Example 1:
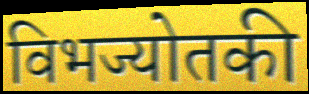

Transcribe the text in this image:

विभज्योतकी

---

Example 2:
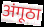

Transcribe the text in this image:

अंगूठा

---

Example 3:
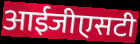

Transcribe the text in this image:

आईजीएसटी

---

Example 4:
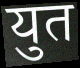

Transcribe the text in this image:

युत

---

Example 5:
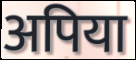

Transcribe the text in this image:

अपिया